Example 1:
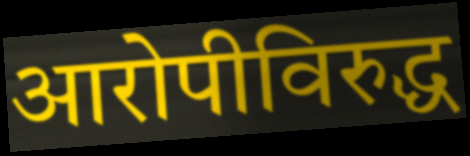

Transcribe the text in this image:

आरोपीविरुद्ध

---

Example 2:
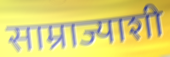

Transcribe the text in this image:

साम्राज्याशी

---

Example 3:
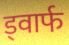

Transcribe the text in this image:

ड्वार्फ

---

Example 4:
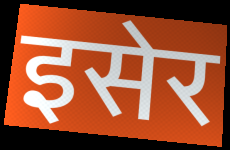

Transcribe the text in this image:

इसेर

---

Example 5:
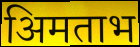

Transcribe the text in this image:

अिमताभ